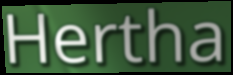
Hertha